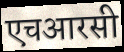
एचआरसी